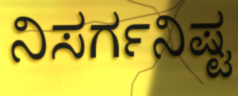
ನಿಸರ್ಗನಿಷ್ಟ